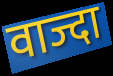
वाज्दा